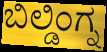
ಬಿಲ್ಡಿಂಗ್ನ